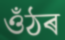
ওঁঠৰ